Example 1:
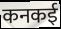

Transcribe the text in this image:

कनकई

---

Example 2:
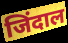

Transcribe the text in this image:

जिंदाल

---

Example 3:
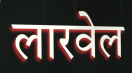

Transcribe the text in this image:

लारवेल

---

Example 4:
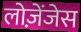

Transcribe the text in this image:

लोज़ेंजेस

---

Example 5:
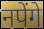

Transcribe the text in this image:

नपेंगे